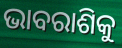
ଭାବରାଶିକୁ